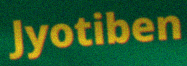
Jyotiben